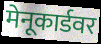
मेनूकार्डवर